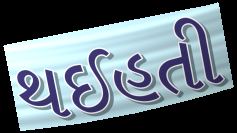
થઈહતી